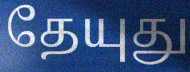
தேயுது